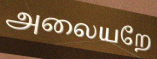
அலையறே